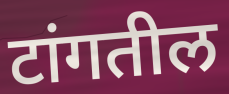
टांगतील